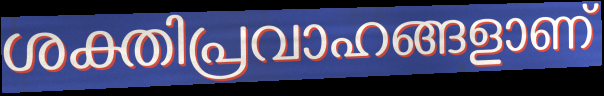
ശക്തിപ്രവാഹങ്ങളാണ്